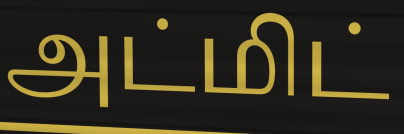
அட்மிட்